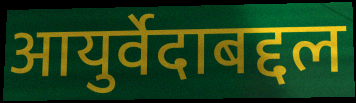
आयुर्वेदाबद्दल